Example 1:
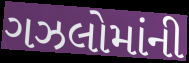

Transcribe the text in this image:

ગઝલોમાંની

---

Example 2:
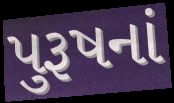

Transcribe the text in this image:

પુરૂષનાં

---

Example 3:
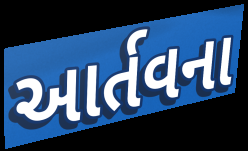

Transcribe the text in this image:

આર્તવના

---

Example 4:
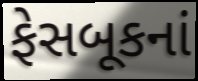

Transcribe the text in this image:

ફેસબૂકનાં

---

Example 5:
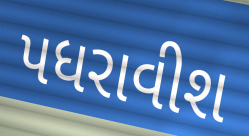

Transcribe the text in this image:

પધરાવીશ